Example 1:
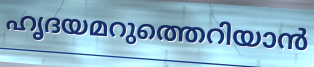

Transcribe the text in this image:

ഹൃദയമറുത്തെറിയാൻ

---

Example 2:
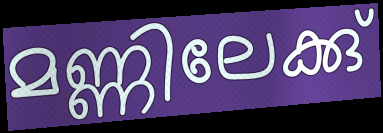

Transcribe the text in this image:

മണ്ണിലേക്കു്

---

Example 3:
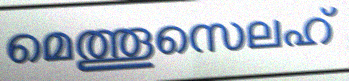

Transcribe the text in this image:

മെത്തൂസെലഹ്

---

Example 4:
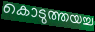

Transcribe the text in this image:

കൊടുത്തയച്ച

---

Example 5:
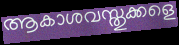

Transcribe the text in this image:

ആകാശവസ്തുക്കളെ